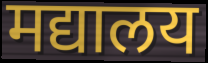
मद्यालय